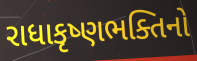
રાધાકૃષ્ણભક્તિનો